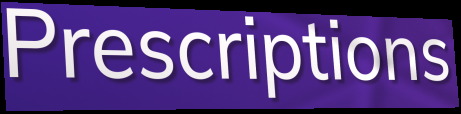
Prescriptions